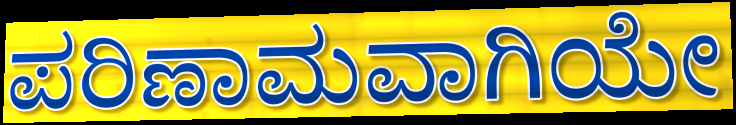
ಪರಿಣಾಮವಾಗಿಯೇ